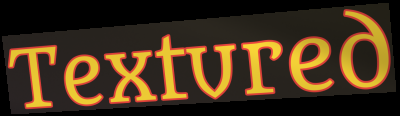
Textured